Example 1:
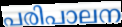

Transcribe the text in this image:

പരിപാലന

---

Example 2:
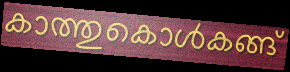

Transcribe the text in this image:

കാത്തുകൊൾകങ്ങ്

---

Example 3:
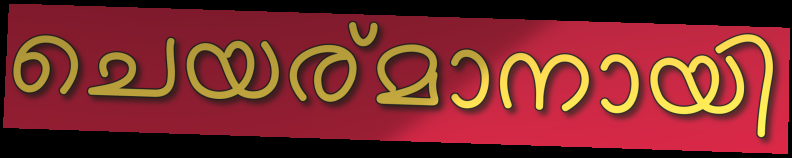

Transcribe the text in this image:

ചെയര്മാനായി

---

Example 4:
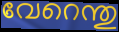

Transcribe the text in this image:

വേറെന്തു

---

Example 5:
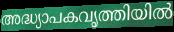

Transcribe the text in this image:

അദ്ധ്യാപകവൃത്തിയിൽ